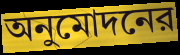
অনুমোদনের